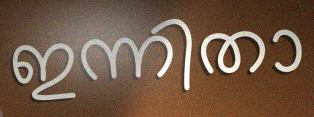
ഇന്നിതാ